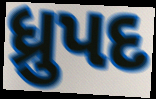
ધ્રુપદ